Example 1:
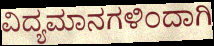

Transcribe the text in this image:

ವಿದ್ಯಮಾನಗಳಿಂದಾಗಿ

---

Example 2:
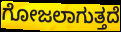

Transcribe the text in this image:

ಗೋಜಲಾಗುತ್ತದೆ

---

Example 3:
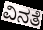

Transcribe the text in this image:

ವಿನತೆ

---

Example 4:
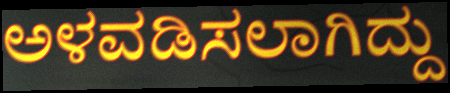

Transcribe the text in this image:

ಅಳವಡಿಸಲಾಗಿದ್ದು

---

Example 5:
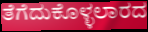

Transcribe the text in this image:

ತೆಗೆದುಕೊಳ್ಳಲಾರದ